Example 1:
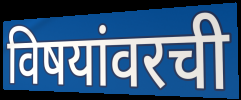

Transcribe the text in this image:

विषयांवरची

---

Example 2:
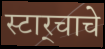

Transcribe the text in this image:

स्टार्चाचे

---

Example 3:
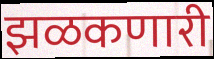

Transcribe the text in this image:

झळकणारी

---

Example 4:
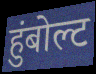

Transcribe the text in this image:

हुंबोल्ट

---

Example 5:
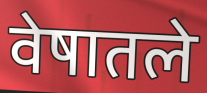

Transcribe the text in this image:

वेषातले